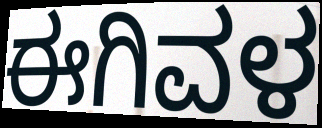
ಈಗಿವಳ